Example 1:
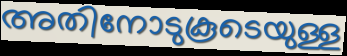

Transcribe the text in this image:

അതിനോടുകൂടെയുള്ള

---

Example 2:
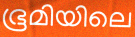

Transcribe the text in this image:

ഭൂമിയിലെ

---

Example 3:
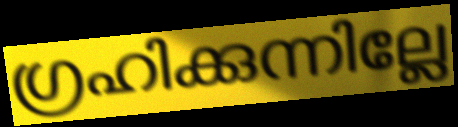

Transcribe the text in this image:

ഗ്രഹിക്കുന്നില്ലേ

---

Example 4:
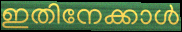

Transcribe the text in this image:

ഇതിനേക്കാൾ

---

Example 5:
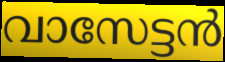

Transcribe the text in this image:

വാസേട്ടൻ